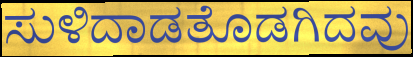
ಸುಳಿದಾಡತೊಡಗಿದವು